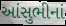
આંસુભીનાં